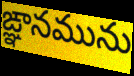
ఙ్ఞానమును